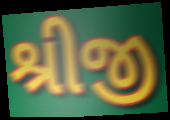
શ્રીજી